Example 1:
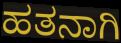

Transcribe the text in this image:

ಹತನಾಗಿ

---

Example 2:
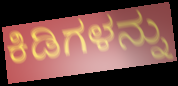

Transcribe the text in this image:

ಕಿಡಿಗಳನ್ನು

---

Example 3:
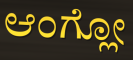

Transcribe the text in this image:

ಆಂಗ್ಲೋ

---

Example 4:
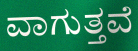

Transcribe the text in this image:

ವಾಗುತ್ತವೆ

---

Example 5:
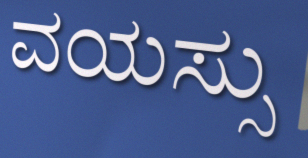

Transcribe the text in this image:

ವಯಸ್ಸು